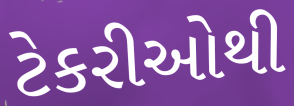
ટેકરીઓથી